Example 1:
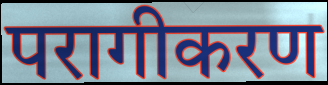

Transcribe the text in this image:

परागीकरण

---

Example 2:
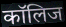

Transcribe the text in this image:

कॉलिज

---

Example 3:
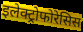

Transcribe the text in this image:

इलेक्ट्रोफोरेसिस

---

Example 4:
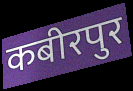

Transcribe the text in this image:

कबीरपुर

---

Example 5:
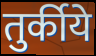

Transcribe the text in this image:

तुर्कीये